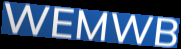
WEMWB